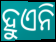
ହୁଏନି